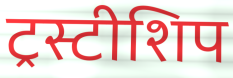
ट्रस्टीशिप